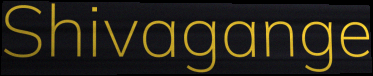
Shivagange